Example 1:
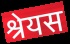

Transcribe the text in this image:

श्रेयस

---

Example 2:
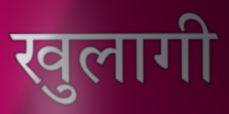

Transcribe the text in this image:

खुलागी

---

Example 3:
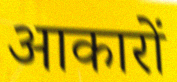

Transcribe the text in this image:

आकारों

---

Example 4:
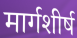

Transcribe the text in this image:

मार्गशीर्ष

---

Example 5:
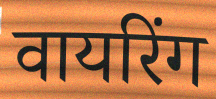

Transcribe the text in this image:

वायरिंग